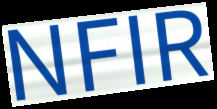
NFIR